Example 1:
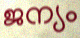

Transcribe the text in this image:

ജന്യം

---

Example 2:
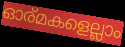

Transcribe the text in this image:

ഓര്മകളെല്ലാം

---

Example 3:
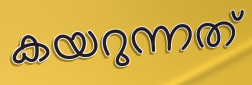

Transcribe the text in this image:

കയറുന്നത്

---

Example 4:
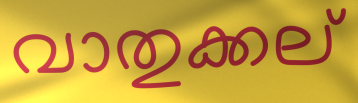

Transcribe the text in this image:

വാതുക്കല്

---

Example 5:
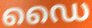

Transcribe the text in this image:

ഡൈ